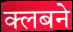
क्‍लबने